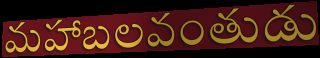
మహాబలవంతుడు